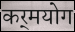
कर्मयोग